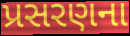
પ્રસરણના